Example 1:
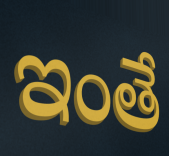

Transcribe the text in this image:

ఇంతే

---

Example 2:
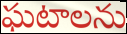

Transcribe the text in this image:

ఘటాలను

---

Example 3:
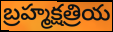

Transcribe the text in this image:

బ్రహ్మక్షత్రియ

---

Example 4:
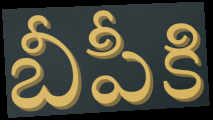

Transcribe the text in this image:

బీపీకి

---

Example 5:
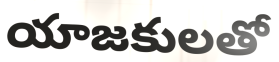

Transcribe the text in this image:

యాజకులతో